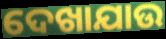
ଦେଖାଯାଉ